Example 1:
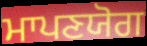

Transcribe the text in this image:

ਮਾਪਣਯੋਗ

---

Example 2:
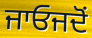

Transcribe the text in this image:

ਜਾਓਜਦੋਂ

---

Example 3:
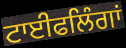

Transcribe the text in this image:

ਟਾਈਫਲਿੰਗਾਂ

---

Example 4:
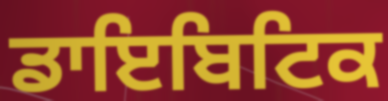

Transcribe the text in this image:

ਡਾਇਬਿਟਿਕ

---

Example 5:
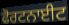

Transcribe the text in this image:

ਫੋਰਟਨਾਈਟ